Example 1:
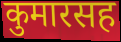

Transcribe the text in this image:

कुमारसह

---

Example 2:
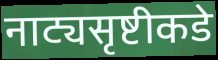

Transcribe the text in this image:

नाट्यसृष्टीकडे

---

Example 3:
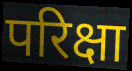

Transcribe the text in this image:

परिक्षा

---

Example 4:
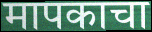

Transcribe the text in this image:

मापकाचा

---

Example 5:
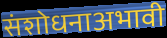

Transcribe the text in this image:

संशोधनाअभावी